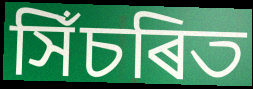
সিঁচৰিত